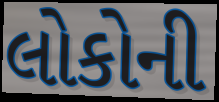
લોકોની